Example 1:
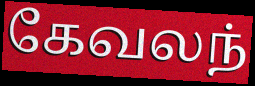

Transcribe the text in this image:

கேவலந்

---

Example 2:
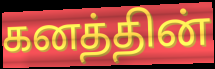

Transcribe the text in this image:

கனத்தின்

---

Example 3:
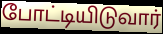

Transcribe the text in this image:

போட்டியிடுவார்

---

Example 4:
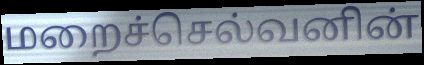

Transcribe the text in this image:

மறைச்செல்வனின்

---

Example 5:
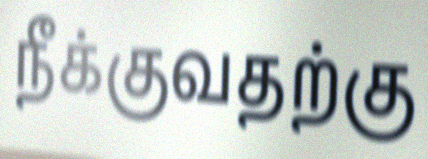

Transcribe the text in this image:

நீக்குவதற்கு